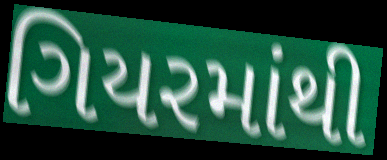
ગિયરમાંથી